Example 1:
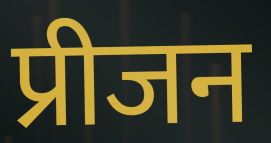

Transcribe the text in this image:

प्रीजन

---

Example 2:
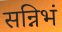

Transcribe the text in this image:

सन्निभं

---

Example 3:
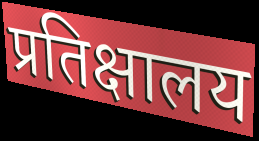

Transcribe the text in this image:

प्रतिक्षालय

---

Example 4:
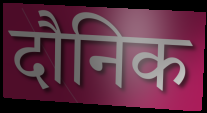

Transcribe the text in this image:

दौनिक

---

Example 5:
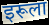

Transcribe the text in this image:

इरूला